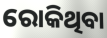
ରୋକିଥିବା